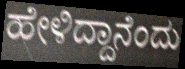
ಹೇಳಿದ್ದಾನೆಂದು